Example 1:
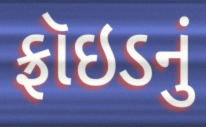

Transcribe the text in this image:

ફ્રૉઇડનું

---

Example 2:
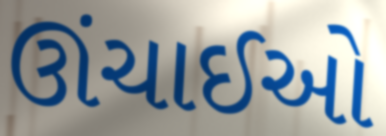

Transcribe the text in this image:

ઊંચાઈઓ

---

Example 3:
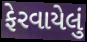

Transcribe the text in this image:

ફેરવાયેલું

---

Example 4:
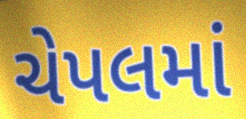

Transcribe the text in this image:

ચેપલમાં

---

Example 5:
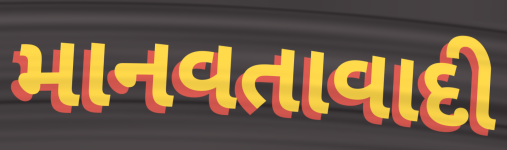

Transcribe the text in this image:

માનવતાવાદી